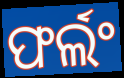
ଫର୍ଲଂ